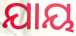
ଯାୟ